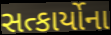
સત્કાર્યોના